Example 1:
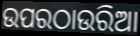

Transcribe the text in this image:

ଉପରଠାଉରିଆ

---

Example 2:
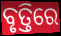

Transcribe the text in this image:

ବୃତ୍ତିରେ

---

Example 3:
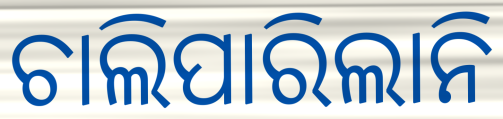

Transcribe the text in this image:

ଚାଲିପାରିଲାନି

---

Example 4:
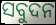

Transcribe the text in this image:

ସବୁଦନ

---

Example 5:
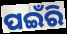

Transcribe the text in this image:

ପଇଁରି